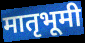
मातृभूमी